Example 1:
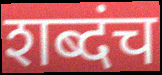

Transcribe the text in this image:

शब्दंच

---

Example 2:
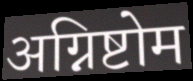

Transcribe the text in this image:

अग्निष्टोम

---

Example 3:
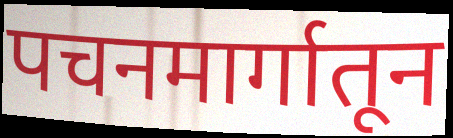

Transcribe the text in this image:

पचनमार्गातून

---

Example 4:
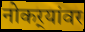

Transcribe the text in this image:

नोकर्यांवर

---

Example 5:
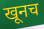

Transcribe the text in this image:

खूनच